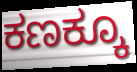
ಕಣಕ್ಕೂ